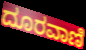
ದೂರವಾಣಿ